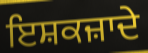
ਇਸ਼ਕਜ਼ਾਦੇ